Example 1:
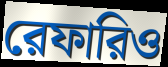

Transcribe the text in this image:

রেফারিও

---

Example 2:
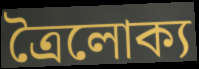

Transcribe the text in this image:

ত্রৈলোক্য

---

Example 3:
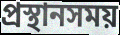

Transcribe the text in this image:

প্রস্থানসময়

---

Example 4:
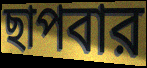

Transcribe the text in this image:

ছাপবার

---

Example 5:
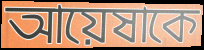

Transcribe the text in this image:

আয়েষাকে